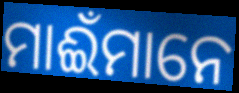
ମାଈଁମାନେ